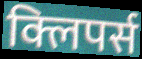
क्लिपर्स